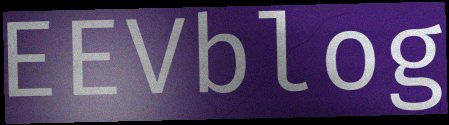
EEVblog